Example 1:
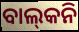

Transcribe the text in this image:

ବାଲ୍‍କନି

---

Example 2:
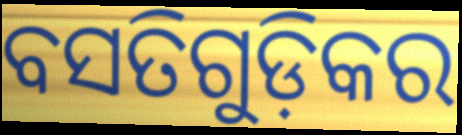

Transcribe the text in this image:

ବସତିଗୁଡ଼ିକର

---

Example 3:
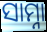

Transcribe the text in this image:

ସାମ୍ନା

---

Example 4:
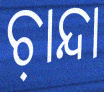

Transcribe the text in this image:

ଚ଼ାନ୍ଦା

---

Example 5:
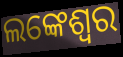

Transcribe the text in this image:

ଲଙ୍କେଶ୍ବର